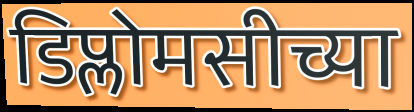
डिप्लोमसीच्या